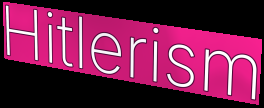
Hitlerism